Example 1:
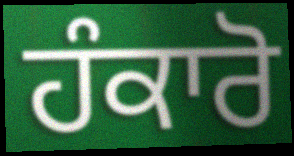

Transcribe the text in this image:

ਹੰਕਾਰੋ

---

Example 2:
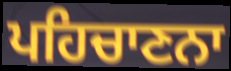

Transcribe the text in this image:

ਪਹਿਚਾਣਨਾ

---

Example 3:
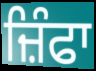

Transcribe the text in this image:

ਜ਼ਿੰਫਾ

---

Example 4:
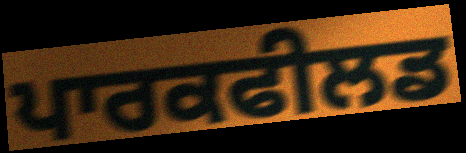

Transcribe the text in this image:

ਪਾਰਕਫੀਲਡ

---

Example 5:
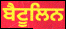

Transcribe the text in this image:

ਬੈਟੂਲਿਨ